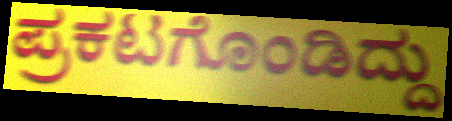
ಪ್ರಕಟಗೊಂಡಿದ್ದು